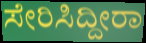
ಸೇರಿಸಿದ್ದೀರಾ